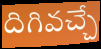
దిగివచ్చే